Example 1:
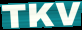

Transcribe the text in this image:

TKV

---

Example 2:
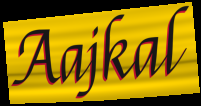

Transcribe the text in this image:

Aajkal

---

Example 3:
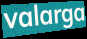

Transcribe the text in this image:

valarga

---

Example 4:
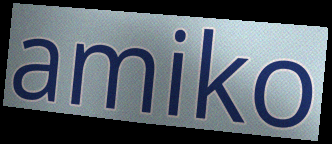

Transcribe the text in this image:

amiko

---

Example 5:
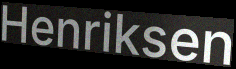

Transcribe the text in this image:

Henriksen